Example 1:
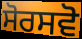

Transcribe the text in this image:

ਸੋਰਸਵੋ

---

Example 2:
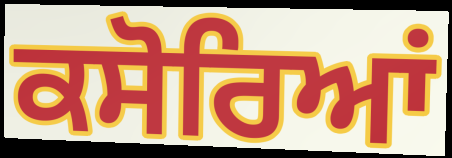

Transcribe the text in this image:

ਕਸੋਰਿਆਂ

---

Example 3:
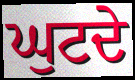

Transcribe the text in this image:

ਘੁਟਦੇ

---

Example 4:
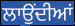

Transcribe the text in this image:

ਲਾਉੰਦੀਆਂ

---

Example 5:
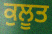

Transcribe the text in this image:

ਕੁਲੂਤ